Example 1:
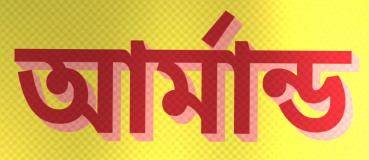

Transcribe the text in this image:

আর্মান্ড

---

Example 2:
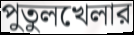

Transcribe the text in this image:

পুতুলখেলার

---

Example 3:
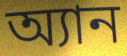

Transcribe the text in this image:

অ্যান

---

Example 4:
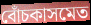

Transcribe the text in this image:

বোঁচকাসমেত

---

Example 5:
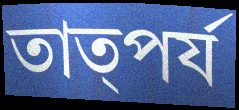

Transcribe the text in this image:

তাত্পর্য